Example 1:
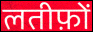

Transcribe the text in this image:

लतीफ़ों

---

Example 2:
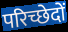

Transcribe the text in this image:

परिच्छेदों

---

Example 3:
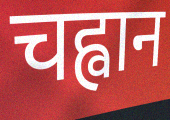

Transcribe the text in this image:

चह्वान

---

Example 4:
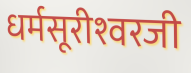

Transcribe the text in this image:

धर्मसूरीश्वरजी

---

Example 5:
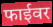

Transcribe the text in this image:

फाईवर